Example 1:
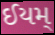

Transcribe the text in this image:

ઈયમ્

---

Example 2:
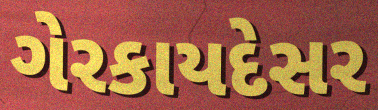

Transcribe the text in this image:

ગેરકાયદેસર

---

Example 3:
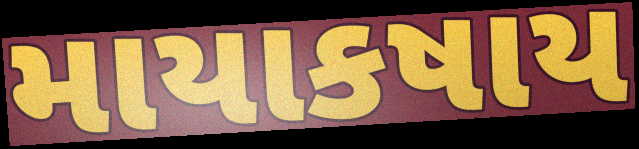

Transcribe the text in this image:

માયાકષાય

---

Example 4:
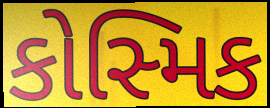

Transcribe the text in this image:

કોસ્મિક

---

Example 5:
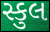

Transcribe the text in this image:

સ્કુલ